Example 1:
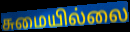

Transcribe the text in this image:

சுமையில்லை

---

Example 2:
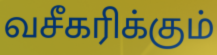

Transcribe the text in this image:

வசீகரிக்கும்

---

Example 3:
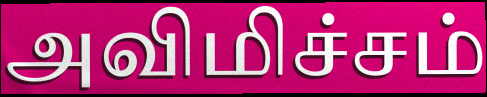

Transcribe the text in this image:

அவிமிச்சம்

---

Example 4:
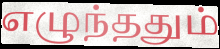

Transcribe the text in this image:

எழுந்ததும்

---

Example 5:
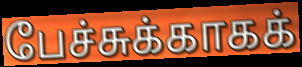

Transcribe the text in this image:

பேச்சுக்காகக்